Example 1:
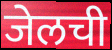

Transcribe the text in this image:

जेलची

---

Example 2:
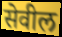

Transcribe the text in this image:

सेवील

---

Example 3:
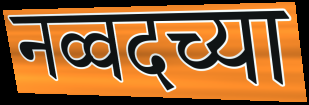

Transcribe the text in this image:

नव्वदच्या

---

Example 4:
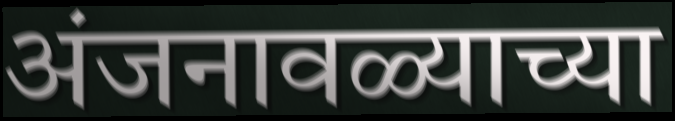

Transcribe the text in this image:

अंजनावळ्याच्या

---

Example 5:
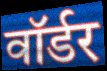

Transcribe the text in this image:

वॉर्डर